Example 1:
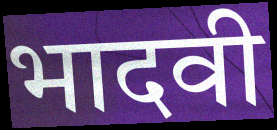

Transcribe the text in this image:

भादवी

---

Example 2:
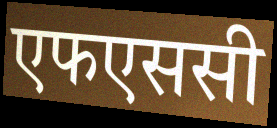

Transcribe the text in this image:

एफएससी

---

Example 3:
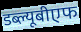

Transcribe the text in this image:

डब्ल्यूबीएफ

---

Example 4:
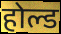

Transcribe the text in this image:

होल्ड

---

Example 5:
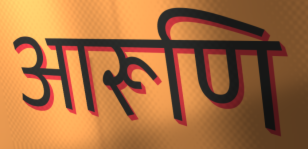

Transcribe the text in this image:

आरूणि